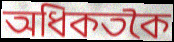
অধিকতকৈ